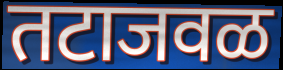
तटाजवळ